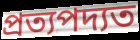
প্রত্যপদ্যত